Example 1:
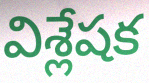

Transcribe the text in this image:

విశ్లేషక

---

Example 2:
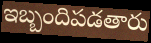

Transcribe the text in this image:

ఇబ్బందిపడతారు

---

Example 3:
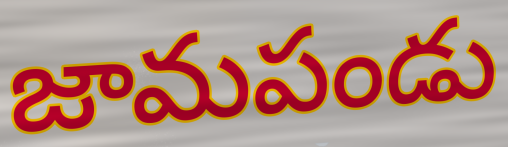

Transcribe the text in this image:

జామపండు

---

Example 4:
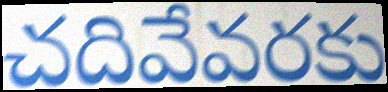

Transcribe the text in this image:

చదివేవరకు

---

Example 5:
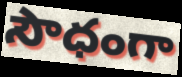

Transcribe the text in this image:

సౌధంగా